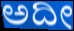
ಅದೀ